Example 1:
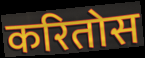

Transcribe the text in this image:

करितोस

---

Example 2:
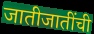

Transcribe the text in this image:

जातीजातींची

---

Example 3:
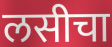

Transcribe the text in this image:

लसीचा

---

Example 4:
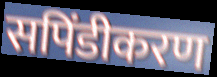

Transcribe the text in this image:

सपिंडीकरण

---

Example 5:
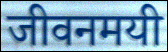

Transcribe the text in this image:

जीवनमयी